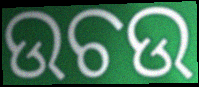
ଉଚଉ